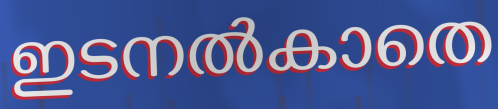
ഇടനൽകാതെ